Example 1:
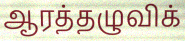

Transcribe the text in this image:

ஆரத்தழுவிக்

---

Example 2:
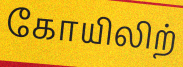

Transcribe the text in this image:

கோயிலிற்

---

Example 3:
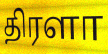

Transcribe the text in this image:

திரளா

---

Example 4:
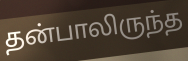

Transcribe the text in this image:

தன்பாலிருந்த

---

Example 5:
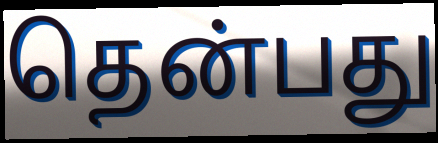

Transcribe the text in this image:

தென்பது